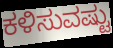
ಕಳಿಸುವಷ್ಟು